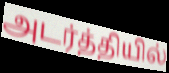
அடர்த்தியில்